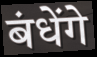
बंधेंगे